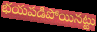
భయపడిపోయినట్టు